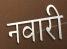
नवारी